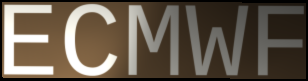
ECMWF